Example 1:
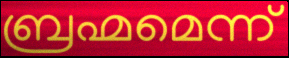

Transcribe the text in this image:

ബ്രഹ്മമെന്ന്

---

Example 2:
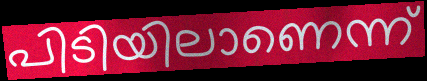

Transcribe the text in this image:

പിടിയിലാണെന്ന്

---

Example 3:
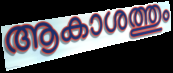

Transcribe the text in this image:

ആകാശത്തും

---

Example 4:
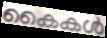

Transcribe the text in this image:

കൈകൾ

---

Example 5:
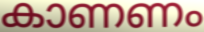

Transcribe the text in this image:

കാണണം